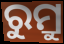
ରୁମ୍ରୁ